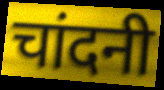
चांदनी